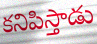
కనిపిస్తాడు